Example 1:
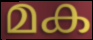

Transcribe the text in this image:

മക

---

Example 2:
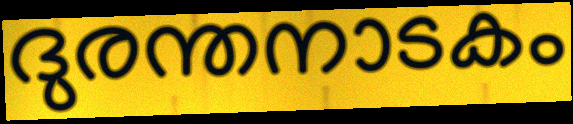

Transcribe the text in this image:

ദുരന്തനാടകം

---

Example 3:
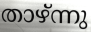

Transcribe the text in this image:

താഴ്ന്നു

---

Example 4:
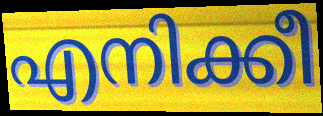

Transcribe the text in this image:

എനിക്കീ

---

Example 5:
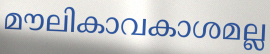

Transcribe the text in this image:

മൗലികാവകാശമല്ല